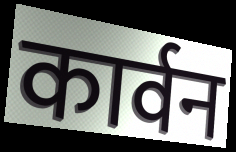
कार्वन